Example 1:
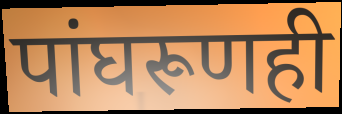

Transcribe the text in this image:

पांघरूणही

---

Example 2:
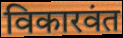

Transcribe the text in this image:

विकारवंत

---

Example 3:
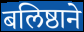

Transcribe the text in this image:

बलिष्ठाने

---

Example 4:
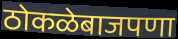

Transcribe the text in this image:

ठोकळेबाजपणा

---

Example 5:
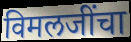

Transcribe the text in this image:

विमलजींचा